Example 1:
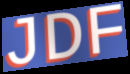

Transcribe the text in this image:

JDF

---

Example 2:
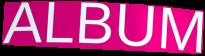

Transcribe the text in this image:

ALBUM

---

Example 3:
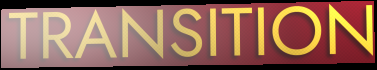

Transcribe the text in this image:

TRANSITION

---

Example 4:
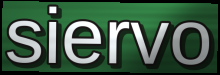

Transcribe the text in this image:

siervo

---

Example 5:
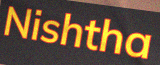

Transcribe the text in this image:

Nishtha